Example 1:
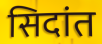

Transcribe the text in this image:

सिदांत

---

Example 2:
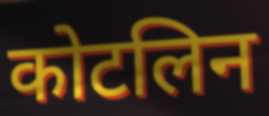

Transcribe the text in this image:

कोटलिन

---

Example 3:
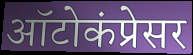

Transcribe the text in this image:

ऑटोकंप्रेसर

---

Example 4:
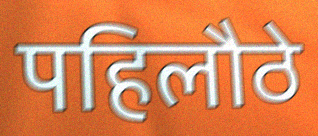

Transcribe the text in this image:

पहिलौठे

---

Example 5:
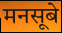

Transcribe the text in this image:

मनसूबे